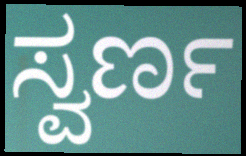
ಸ್ವರ್ಣ